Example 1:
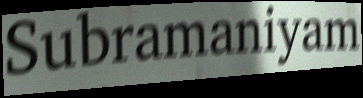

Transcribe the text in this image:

Subramaniyam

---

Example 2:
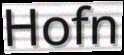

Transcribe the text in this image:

Hofn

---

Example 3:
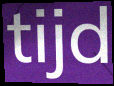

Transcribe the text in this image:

tijd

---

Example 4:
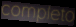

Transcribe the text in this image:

completo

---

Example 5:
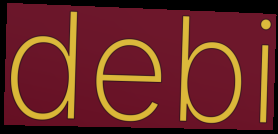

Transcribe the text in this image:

debi